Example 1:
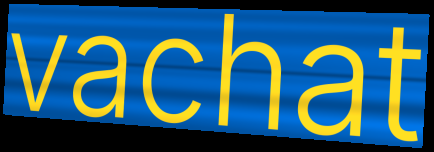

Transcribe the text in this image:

vachat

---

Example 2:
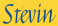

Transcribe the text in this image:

Stevin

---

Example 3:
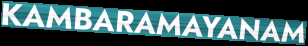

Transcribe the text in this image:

KAMBARAMAYANAM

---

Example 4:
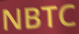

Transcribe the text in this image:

NBTC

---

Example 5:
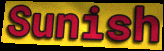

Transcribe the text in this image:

Sunish